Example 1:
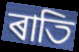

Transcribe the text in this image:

ৰাতি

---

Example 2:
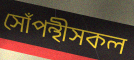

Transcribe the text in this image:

সোঁপন্থীসকল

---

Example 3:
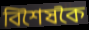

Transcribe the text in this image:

বিশৈষকৈ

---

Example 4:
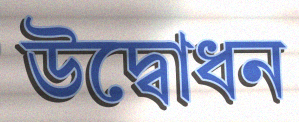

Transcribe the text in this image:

উদ্বোধন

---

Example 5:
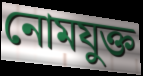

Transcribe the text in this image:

নোমযুক্ত